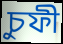
চুফী